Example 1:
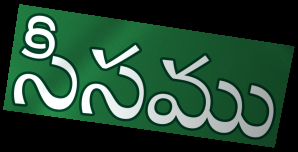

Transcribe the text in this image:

సీసము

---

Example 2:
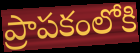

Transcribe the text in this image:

ప్రాపకంలోకి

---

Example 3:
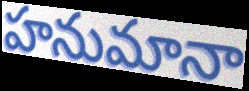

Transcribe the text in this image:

హనుమానా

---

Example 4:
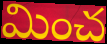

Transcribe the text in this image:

మించ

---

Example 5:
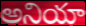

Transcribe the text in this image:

అనియా